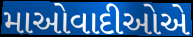
માઓવાદીઓએ